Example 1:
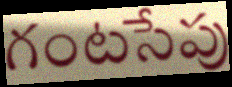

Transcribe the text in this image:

గంటసేపు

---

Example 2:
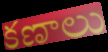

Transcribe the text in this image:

కణాలు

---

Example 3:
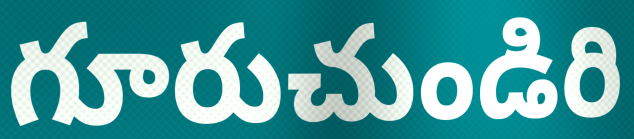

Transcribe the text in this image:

గూరుచుండిరి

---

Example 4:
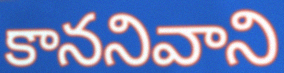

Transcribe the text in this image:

కాననివాని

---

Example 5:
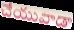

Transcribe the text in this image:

చేయువాడా